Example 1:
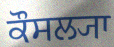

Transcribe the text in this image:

ਕੌਸਲ੍ਯਾ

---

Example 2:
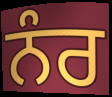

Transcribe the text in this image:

ਨੰਰ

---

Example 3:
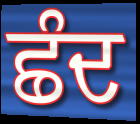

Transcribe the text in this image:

ਛੰਦ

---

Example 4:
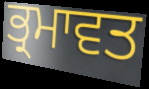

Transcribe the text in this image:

ਭ੍ਰਮਾਵਤ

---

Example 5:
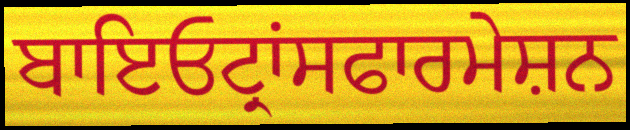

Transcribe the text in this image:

ਬਾਇਓਟ੍ਰਾਂਸਫਾਰਮੇਸ਼ਨ